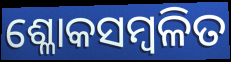
ଶ୍ଳୋକସମ୍ବଳିତ